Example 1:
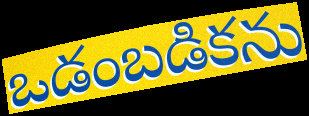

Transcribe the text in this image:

ఒడంబడికను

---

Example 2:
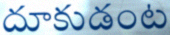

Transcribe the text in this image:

దూకుడంట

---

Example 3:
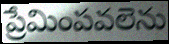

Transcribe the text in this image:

ప్రేమింపవలెను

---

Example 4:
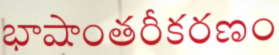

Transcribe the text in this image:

భాషాంతరీకరణం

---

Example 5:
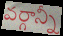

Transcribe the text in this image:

వర్గాన్నీ